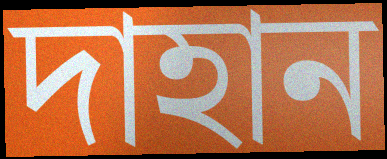
দাহান